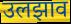
उलझाव